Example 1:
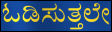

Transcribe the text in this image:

ಓಡಿಸುತ್ತಲೇ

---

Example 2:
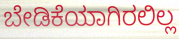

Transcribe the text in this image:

ಬೇಡಿಕೆಯಾಗಿರಲಿಲ್ಲ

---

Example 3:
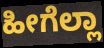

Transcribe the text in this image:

ಹೀಗೆಲ್ಲಾ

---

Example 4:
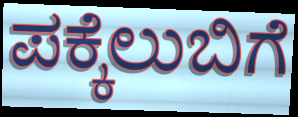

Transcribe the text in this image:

ಪಕ್ಕೆಲುಬಿಗೆ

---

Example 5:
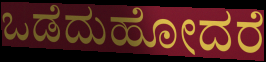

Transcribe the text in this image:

ಒಡೆದುಹೋದರೆ